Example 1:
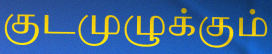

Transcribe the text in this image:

குடமுழுக்கும்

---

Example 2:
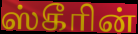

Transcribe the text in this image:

ஸ்கீரின்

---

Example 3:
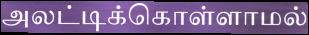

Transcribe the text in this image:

அலட்டிக்கொள்ளாமல்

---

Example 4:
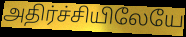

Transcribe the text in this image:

அதிர்ச்சியிலேயே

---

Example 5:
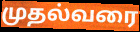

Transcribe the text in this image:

முதல்வரை